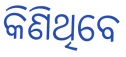
କିଣିଥିବେ